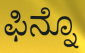
ಫಿನ್ನೊ